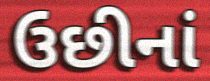
ઉછીનાં